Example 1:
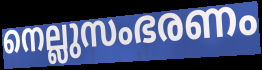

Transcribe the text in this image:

നെല്ലുസംഭരണം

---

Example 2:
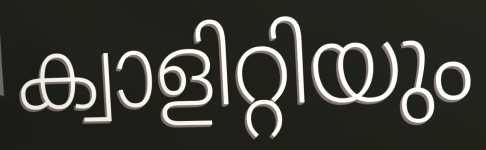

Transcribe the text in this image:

ക്വാളിറ്റിയും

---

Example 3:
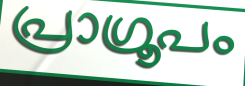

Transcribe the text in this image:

പ്രാഗ്രൂപം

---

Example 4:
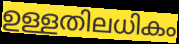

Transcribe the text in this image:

ഉള്ളതിലധികം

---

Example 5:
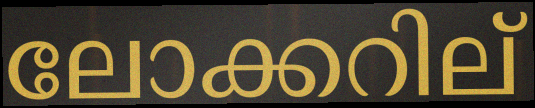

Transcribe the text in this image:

ലോക്കറില്